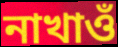
নাখাওঁ